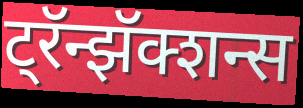
ट्रॅन्झॅक्शन्स